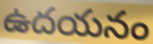
ఉదయనం